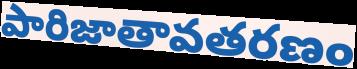
పారిజాతావతరణం